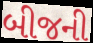
બીજની